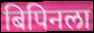
बिपिनला